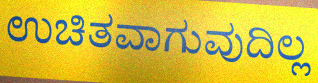
ಉಚಿತವಾಗುವುದಿಲ್ಲ